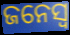
ଜନେସ୍ୱ